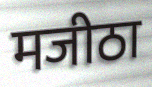
मजीठा